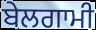
ਬੇਲਗਾਮੀ